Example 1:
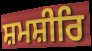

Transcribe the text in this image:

ਸ਼ਮਸ਼ੀਰਿ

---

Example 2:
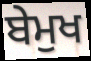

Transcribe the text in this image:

ਬੇਮੁਖ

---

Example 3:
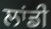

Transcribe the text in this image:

ਲਾਂਡੀ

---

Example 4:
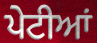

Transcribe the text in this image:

ਪੇਟੀਆਂ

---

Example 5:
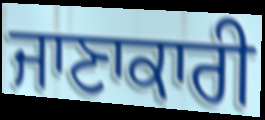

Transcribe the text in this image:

ਜਾਣਾਕਾਰੀ